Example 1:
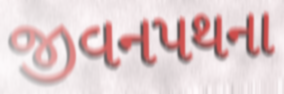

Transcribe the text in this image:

જીવનપથના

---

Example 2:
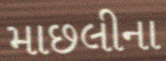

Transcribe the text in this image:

માછલીના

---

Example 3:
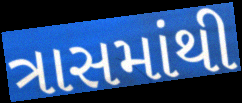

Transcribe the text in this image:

ત્રાસમાંથી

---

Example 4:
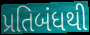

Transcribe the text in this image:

પ્રતિબંધથી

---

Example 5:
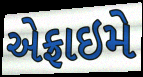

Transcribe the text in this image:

એફ્રાઇમે